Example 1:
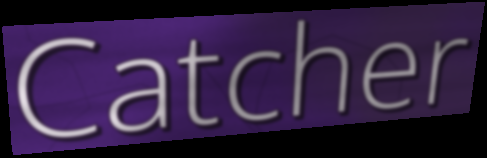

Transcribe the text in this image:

Catcher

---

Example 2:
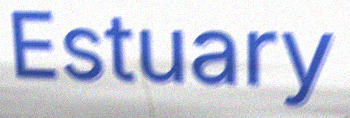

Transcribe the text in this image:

Estuary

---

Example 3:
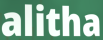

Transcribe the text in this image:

alitha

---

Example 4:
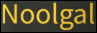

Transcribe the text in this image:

Noolgal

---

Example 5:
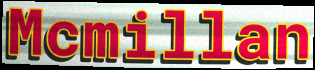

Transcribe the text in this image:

Mcmillan